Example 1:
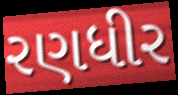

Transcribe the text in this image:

રણધીર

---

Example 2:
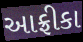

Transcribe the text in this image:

આફ્રીકા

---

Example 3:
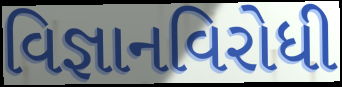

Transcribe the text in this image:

વિજ્ઞાનવિરોધી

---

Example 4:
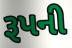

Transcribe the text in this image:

રૂપની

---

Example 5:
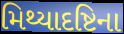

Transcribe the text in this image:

મિથ્યાદષ્ટિના